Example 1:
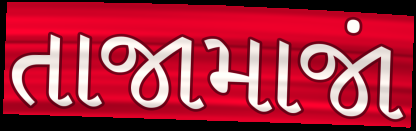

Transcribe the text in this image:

તાજામાજાં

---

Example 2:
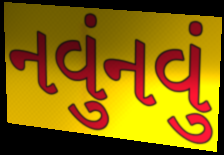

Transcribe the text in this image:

નવુંનવું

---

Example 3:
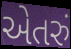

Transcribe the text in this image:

એતરું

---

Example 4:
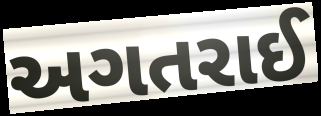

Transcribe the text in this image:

અગતરાઈ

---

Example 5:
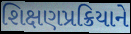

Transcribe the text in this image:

શિક્ષણપ્રક્રિયાને